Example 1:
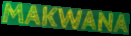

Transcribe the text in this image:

MAKWANA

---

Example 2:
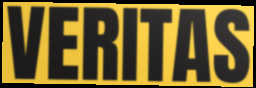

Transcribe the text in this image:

VERITAS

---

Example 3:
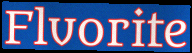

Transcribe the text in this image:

Fluorite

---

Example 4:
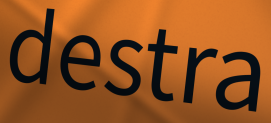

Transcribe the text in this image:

destra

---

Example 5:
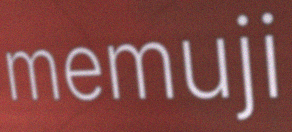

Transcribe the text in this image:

memuji